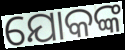
ଯୋକଙ୍କ